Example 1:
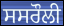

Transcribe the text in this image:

ਸਸਰੌਲੀ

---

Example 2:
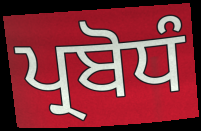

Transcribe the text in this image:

ਪ੍ਰਬੋਧੰ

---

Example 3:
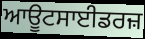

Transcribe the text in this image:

ਆਊਟਸਾਈਡਰਜ਼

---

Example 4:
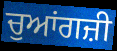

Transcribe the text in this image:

ਚੁਆਂਗਜ਼ੀ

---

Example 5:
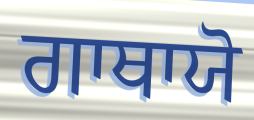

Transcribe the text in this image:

ਗਾਥਾਯੋ